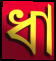
ধা